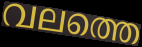
വലത്തെ